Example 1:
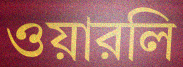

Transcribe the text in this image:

ওয়ারলি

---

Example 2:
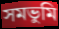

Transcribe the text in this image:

সমভুমি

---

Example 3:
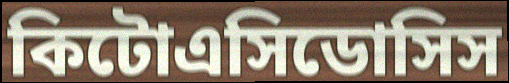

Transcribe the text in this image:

কিটোএসিডোসিস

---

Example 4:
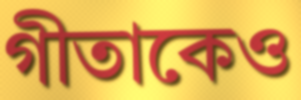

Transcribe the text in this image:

গীতাকেও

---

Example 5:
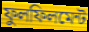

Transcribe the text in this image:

ফুলফিলমেন্ট